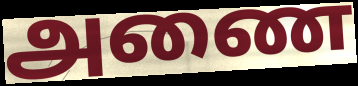
அணை